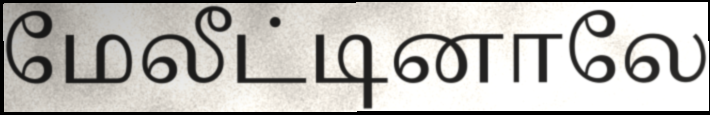
மேலீட்டினாலே